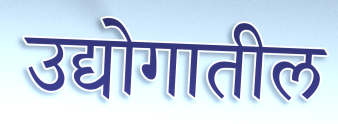
उद्योगातील